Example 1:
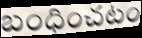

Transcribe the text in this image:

బంధించటం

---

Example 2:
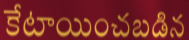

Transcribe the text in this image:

కేటాయించబడిన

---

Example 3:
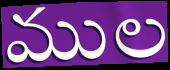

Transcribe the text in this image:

ముల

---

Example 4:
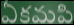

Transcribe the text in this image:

ఏకమపి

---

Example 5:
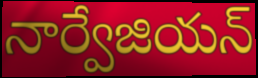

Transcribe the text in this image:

నార్వేజియన్